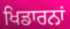
ਖਿਡਾਰਨਾਂ